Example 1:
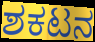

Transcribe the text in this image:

ಶಕಟನ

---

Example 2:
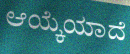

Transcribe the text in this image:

ಆಯ್ಕೆಯಾದೆ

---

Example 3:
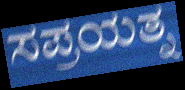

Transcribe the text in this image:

ಸಪ್ರಯತ್ನ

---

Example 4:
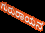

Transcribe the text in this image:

ಗುರುರಾಯನ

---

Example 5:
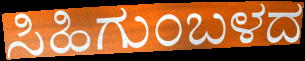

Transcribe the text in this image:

ಸಿಹಿಗುಂಬಳದ